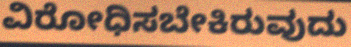
ವಿರೋಧಿಸಬೇಕಿರುವುದು